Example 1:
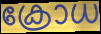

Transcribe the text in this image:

ക്രോധ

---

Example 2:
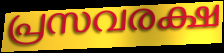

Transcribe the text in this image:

പ്രസവരക്ഷ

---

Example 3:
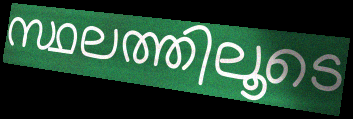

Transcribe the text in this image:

സ്ഥലത്തിലൂടെ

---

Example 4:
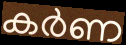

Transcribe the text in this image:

കർണ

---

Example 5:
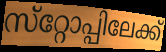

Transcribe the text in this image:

സ്‌റ്റോപ്പിലേക്ക്